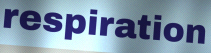
respiration